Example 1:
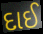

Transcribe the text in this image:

દાઈ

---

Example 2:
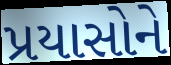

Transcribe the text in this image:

પ્રયાસોને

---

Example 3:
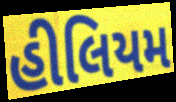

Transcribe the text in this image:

હીલિયમ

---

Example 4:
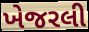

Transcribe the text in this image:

ખેજરલી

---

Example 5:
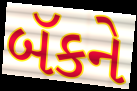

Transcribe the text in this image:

બૅકને